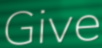
Give